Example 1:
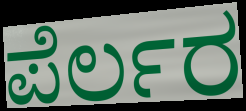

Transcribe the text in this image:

ಪೆರ್ಲರ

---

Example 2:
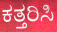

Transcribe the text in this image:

ಕತ್ತರಿಸಿ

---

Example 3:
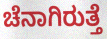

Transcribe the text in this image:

ಚೆನಾಗಿರುತ್ತೆ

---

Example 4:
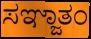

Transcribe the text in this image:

ಸಞ್ಜಾತಂ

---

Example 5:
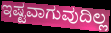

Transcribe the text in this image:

ಇಷ್ಟವಾಗುವುದಿಲ್ಲ